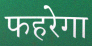
फहरेगा